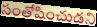
సంతోషించుడని